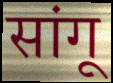
सांगू